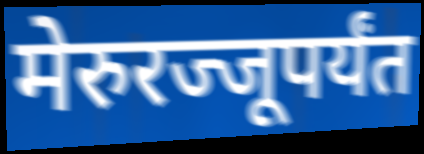
मेरुरज्जूपर्यंत